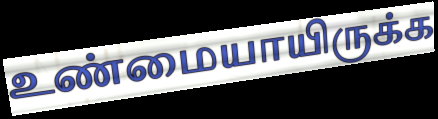
உண்மையாயிருக்க